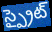
స్ప్రైట్